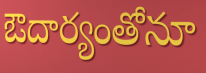
ఔదార్యంతోనూ